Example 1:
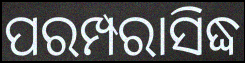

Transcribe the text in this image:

ପରମ୍ପରାସିଦ୍ଧ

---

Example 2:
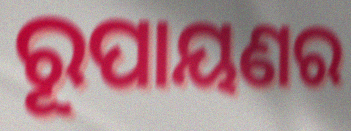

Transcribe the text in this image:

ରୂପାୟଣର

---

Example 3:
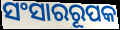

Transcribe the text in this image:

ସଂସାରରୂପକ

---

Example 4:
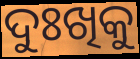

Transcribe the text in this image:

ଦୁଃଖିକୁ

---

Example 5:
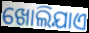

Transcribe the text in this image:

ଖୋଲିଯାଏ